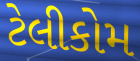
ટેલીકોમ